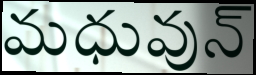
మధువున్